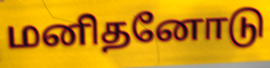
மனிதனோடு